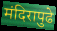
मंदिरापुढे